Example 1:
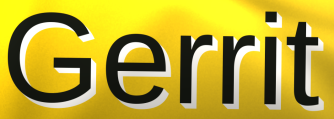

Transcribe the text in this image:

Gerrit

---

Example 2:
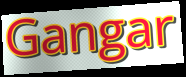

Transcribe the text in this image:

Gangar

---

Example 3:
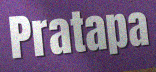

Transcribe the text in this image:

Pratapa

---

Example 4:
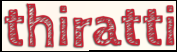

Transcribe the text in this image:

thiratti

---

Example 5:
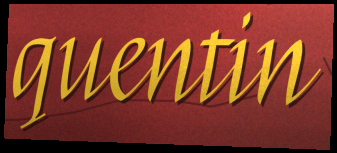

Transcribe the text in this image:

quentin